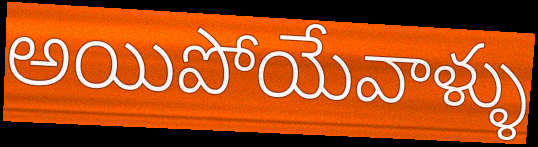
అయిపోయేవాళ్ళు